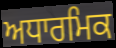
ਅਧਾਰਮਿਕ